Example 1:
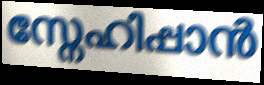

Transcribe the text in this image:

സ്നേഹിപ്പാൻ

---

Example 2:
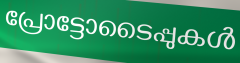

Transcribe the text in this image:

പ്രോട്ടോടൈപ്പുകൾ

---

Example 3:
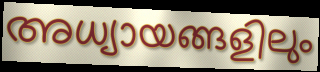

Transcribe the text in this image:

അധ്യായങ്ങളിലും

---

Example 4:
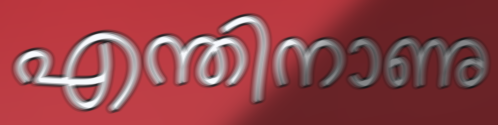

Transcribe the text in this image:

എന്തിനാണു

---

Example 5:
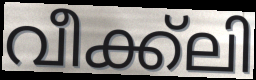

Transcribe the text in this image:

വീക്ക്ലി